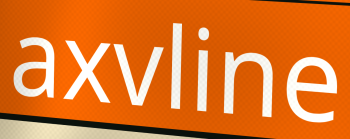
axvline